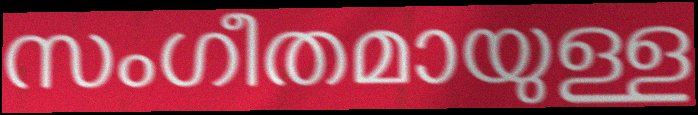
സംഗീതമായുള്ള